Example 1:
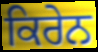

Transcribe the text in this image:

ਕਿਰੇਨ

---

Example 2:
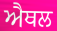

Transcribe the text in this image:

ਐਥਲ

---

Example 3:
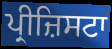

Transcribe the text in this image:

ਪ੍ਰੀਜ਼ਿਸਟਾ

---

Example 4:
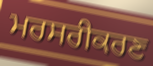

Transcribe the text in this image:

ਮਰਸਰੀਕਰਣ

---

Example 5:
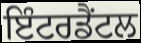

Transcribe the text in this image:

ਇੰਟਰਡੈਂਟਲ